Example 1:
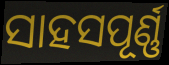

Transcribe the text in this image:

ସାହସପୂର୍ଣ୍ଣ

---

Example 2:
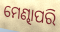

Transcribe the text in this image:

ମେଣ୍ଢାପରି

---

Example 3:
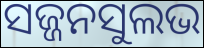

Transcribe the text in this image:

ସଜ୍ଜନସୁଲଭ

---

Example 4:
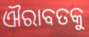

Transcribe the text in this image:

ଐରାବତକୁ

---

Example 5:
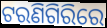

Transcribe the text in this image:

ଟରଣିଗିରିରେ